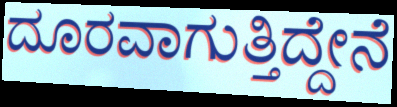
ದೂರವಾಗುತ್ತಿದ್ದೇನೆ